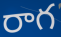
రాగ